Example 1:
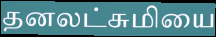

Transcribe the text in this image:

தனலட்சுமியை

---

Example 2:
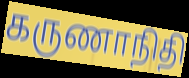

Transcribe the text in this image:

கருணாநிதி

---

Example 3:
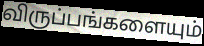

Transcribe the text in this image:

விருப்பங்களையும்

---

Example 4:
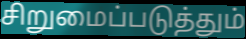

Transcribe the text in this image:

சிறுமைப்படுத்தும்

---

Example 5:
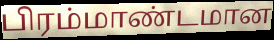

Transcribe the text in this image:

பிரம்மாண்டமான